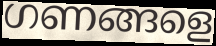
ഗണങ്ങളെ